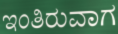
ಇಂತಿರುವಾಗ